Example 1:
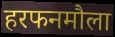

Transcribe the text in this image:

हरफनमौला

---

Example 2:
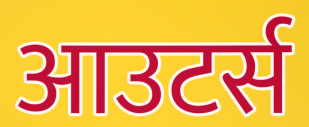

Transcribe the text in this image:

आउटर्स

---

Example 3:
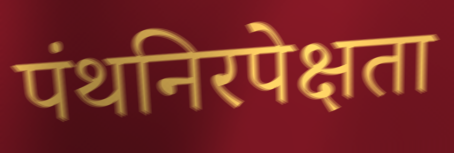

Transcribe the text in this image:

पंथनिरपेक्षता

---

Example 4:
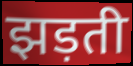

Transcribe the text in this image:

झड़ती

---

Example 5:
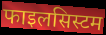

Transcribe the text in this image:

फाइलसिस्टम